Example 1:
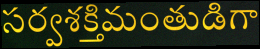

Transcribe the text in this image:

సర్వశక్తిమంతుడిగా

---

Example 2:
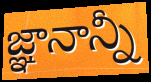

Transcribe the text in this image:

జ్ఞానాన్నీ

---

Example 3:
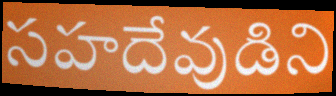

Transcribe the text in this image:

సహదేవుడిని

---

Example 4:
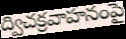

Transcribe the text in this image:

ద్విచక్రవాహనంపై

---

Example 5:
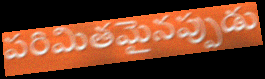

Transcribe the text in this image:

పరిమితమైనప్పుడు